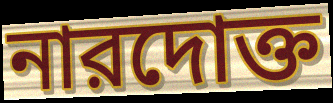
নারদোক্ত